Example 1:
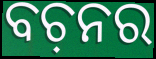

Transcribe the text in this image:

ବଚ଼ନର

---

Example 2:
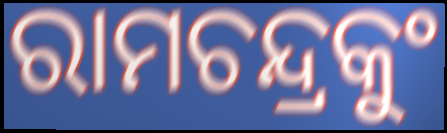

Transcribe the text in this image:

ରାମଚନ୍ଦ୍ରକୁଂ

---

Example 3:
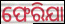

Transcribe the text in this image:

ଫେରିଯା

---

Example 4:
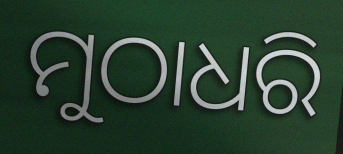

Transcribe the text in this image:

ମୁଠାଧରି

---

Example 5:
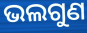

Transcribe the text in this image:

ଭଲଗୁଣ